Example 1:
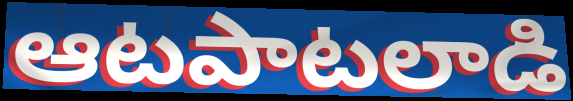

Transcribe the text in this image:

ఆటపాటలాడి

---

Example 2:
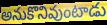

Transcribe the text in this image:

అనుకొనివుంటాడు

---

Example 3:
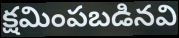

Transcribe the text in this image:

క్షమింపబడినవి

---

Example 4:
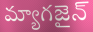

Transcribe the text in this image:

మ్యాగజైన్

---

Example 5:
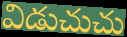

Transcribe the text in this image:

విడుచుచు